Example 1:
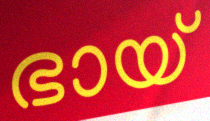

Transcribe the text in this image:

ഭായ്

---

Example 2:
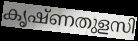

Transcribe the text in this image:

കൃഷ്ണതുളസി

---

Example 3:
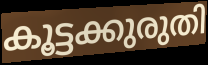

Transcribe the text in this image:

കൂട്ടക്കുരുതി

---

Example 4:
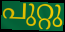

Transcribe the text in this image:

പുറ്റു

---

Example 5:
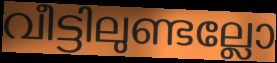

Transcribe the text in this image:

വീട്ടിലുണ്ടല്ലോ